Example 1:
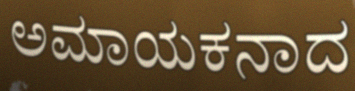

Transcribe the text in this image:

ಅಮಾಯಕನಾದ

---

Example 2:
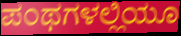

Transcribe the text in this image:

ಪಂಥಗಳಲ್ಲಿಯೂ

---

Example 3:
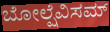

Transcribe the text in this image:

ಬೋಲ್ಷೆವಿಸಮ್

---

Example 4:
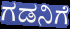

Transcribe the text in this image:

ಗಡನಿಗೆ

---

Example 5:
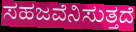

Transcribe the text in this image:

ಸಹಜವೆನಿಸುತ್ತದೆ